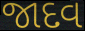
જાદવ